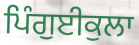
ਪਿੰਗੁਈਕੁਲਾ